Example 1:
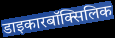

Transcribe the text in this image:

डाइकारबॉक्सिलिक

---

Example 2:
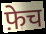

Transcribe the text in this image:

फ़ेच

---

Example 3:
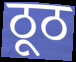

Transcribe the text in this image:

ठूठ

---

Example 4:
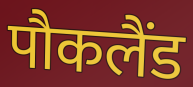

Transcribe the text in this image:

पौकलैंड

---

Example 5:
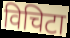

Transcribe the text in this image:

विचिटा